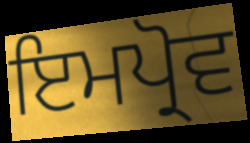
ਇਮਪ੍ਰੋਵ